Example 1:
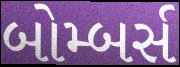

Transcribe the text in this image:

બોમ્બર્સ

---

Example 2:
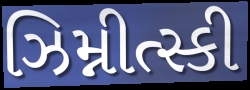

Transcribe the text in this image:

ઝિમ્નીત્સ્કી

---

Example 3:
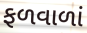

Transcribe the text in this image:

ફળવાળાં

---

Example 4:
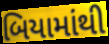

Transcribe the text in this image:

બિયામાંથી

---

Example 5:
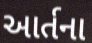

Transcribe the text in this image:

આર્તના